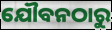
ଯୌବନଠାରୁ